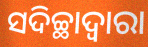
ସଦିଚ୍ଛାଦ୍ୱାରା